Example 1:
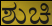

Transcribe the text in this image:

ಶುಚಿ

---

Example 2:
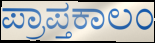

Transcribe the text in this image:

ಪ್ರಾಪ್ತಕಾಲಂ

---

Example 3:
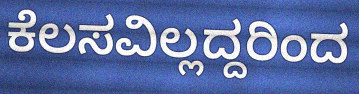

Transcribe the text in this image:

ಕೆಲಸವಿಲ್ಲದ್ದರಿಂದ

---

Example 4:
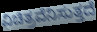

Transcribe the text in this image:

ವಿಚಿತ್ರವೆನಿಸುತ್ತದೆ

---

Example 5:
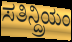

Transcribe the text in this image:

ಸತಿನ್ದ್ರಿಯಂ